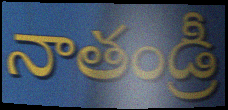
నాతండ్రీ